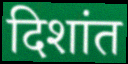
दिशांत